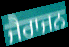
ਜੈਰਾਜਨ